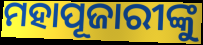
ମହାପୂଜାରୀଙ୍କୁ